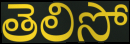
తెలిసో